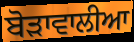
ਬੋੜਾਵਾਲੀਆ